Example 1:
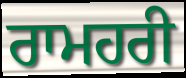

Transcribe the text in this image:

ਰਾਮਹਰੀ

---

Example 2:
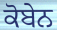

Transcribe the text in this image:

ਕੋਬੇਨ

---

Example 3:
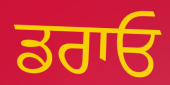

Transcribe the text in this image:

ਡਰਾਓ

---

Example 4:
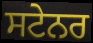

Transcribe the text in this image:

ਸਟੇਨਰ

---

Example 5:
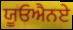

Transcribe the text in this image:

ਯੂਓਐਨਏ